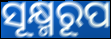
ସୂକ୍ଷ୍ମରୂପ